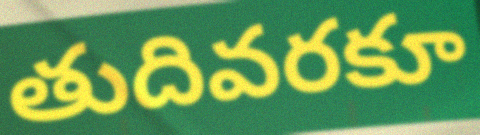
తుదివరకూ